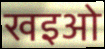
खइओ